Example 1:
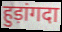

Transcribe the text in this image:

हुड़ांगदा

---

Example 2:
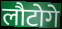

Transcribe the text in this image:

लौटोगे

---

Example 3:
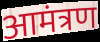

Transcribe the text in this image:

आमंत्रण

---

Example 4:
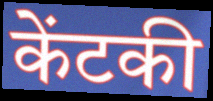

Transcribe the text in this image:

केंटकी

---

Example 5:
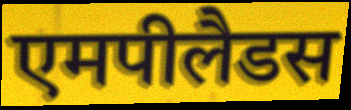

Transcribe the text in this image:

एमपीलैडस